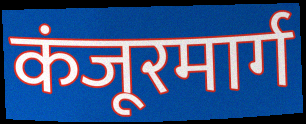
कंजूरमार्ग